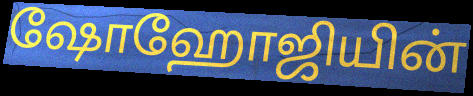
ஷோஹோஜியின்